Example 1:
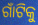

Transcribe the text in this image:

ଗାଁଟିକୁ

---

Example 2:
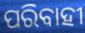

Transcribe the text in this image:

ପରିବାହୀ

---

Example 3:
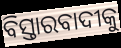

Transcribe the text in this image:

ବିସ୍ତାରବାଦୀକୁ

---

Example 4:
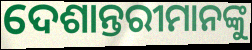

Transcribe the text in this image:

ଦେଶାନ୍ତରୀମାନଙ୍କୁ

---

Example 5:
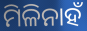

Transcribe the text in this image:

ମିଳିନାହଁ